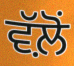
ਵੱਲ਼ੋਂ